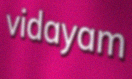
vidayam